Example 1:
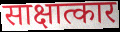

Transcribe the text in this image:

साक्षात्कार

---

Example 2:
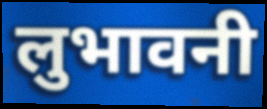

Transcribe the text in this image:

लुभावनी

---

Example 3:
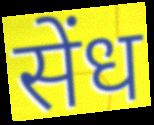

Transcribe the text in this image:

सेंध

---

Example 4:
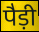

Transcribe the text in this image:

पैड़ी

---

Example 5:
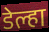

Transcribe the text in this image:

डेल्हा